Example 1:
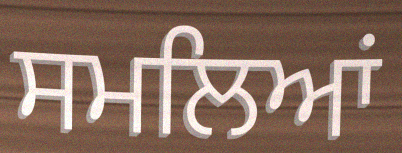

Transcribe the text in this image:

ਸਮਲਿਆਂ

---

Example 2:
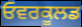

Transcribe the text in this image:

ਓਵਰਕੂਲਡ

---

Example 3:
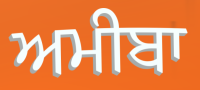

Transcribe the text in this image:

ਅਮੀਬਾ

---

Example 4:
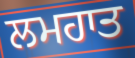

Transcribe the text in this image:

ਲਮਹਾਤ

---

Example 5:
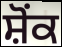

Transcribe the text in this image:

ਸ਼ੋਂਕ